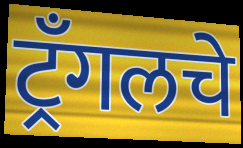
ट्रँगलचे